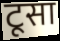
टूसा